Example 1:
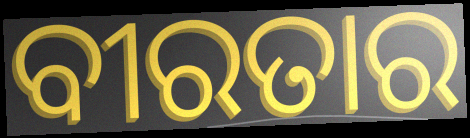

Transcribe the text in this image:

ବୀରତାର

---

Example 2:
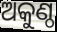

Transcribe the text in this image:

ଅକୁଣ୍ଠ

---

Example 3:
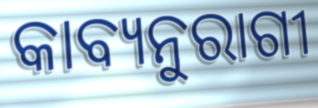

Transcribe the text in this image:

କାବ୍ୟନୁରାଗୀ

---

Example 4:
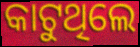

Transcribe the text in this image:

କାଟୁଥିଲେ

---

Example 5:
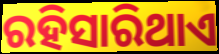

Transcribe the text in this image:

ରହିସାରିଥାଏ